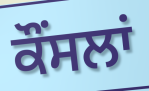
ਕੌਂਸਲਾਂ